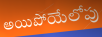
అయిపోయేలోపు